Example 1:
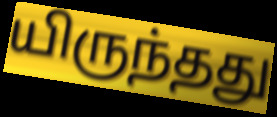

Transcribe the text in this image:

யிருந்தது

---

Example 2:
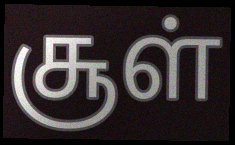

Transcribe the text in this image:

சூள்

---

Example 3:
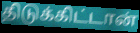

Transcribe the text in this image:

திடுக்கிட்டான்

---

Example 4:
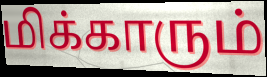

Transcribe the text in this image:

மிக்காரும்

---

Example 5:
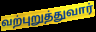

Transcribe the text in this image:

வற்புறுத்துவார்